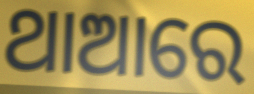
ଥାଆରେ